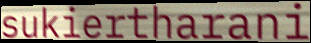
sukiertharani